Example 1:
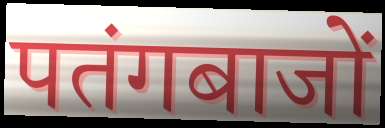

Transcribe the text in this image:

पतंगबाजों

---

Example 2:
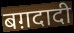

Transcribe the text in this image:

बग़दादी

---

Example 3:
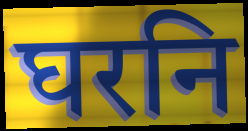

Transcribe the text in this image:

घरनि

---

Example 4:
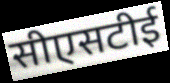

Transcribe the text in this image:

सीएसटीई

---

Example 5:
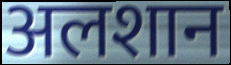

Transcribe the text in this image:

अलशान